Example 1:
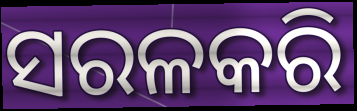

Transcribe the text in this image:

ସରଳକରି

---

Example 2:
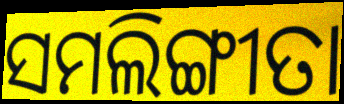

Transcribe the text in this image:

ସମଲିଙ୍ଗୀତା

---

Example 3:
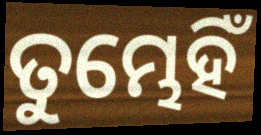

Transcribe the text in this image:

ତୁମ୍ଭେହିଁ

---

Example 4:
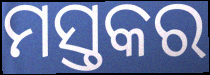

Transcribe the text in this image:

ମସ୍ତକର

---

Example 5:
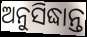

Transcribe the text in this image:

ଅନୁସିଦ୍ଧାନ୍ତ